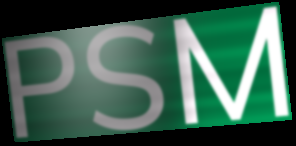
PSM